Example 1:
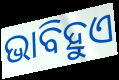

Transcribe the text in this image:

ଭାବିହୁଏ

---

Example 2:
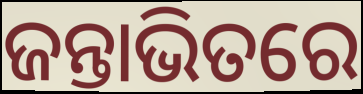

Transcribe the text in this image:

ଜନ୍ତାଭିତରେ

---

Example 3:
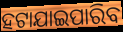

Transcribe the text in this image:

ହଟାଯାଇପାରିବ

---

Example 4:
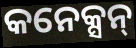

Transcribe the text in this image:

କନେକ୍ସନ୍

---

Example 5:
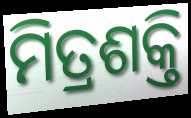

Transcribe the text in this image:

ମିତ୍ରଶକ୍ତି